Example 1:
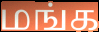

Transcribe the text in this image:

மங்க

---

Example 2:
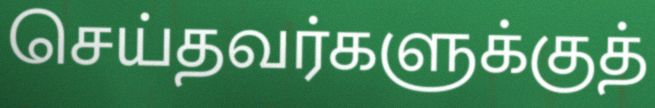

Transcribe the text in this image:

செய்தவர்களுக்குத்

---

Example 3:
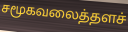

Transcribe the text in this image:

சமூகவலைத்தளச்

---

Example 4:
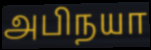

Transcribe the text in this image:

அபிநயா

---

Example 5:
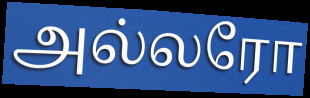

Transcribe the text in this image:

அல்லரோ